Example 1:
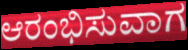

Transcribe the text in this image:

ಆರಂಭಿಸುವಾಗ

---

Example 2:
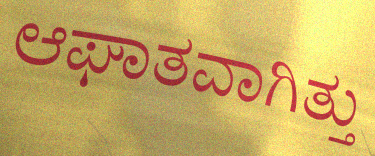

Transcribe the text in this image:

ಆಘಾತವಾಗಿತ್ತು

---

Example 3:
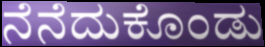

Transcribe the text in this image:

ನೆನೆದುಕೊಂಡು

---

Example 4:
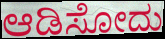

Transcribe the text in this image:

ಆಡಿಸೋದು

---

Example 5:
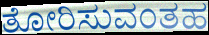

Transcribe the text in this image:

ತೋರಿಸುವಂತಹ